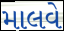
માલવે